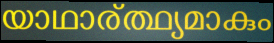
യാഥാര്ത്ഥ്യമാകും